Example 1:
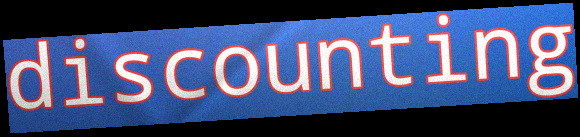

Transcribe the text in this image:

discounting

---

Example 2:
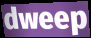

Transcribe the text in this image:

dweep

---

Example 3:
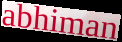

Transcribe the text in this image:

abhiman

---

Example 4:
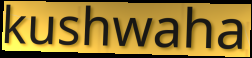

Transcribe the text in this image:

kushwaha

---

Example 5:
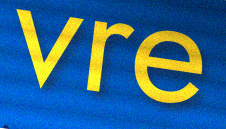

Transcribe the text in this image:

vre